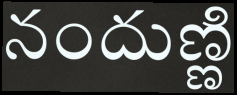
నందుణ్ణి